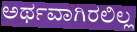
ಅರ್ಥವಾಗಿರಲಿಲ್ಲ